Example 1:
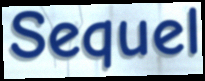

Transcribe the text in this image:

Sequel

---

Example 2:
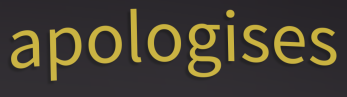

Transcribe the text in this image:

apologises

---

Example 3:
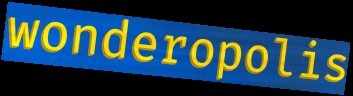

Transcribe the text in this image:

wonderopolis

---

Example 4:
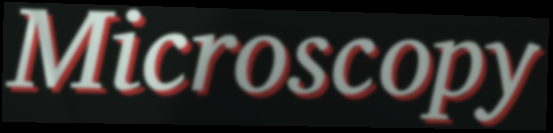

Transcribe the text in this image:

Microscopy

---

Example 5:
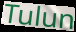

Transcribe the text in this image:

Tulun